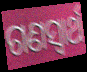
ଗଣସ୍ୱାର୍ଥ